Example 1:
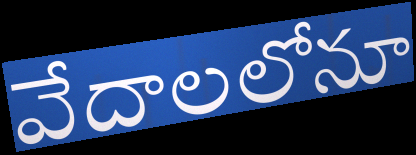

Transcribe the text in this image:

వేదాలలోనూ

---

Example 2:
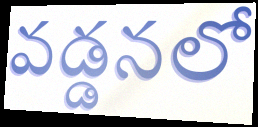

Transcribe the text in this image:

వడ్డనలో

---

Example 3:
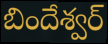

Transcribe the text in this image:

బిందేశ్వర్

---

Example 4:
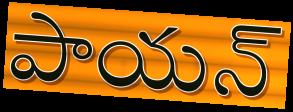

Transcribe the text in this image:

పాయన్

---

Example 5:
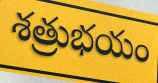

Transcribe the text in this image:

శత్రుభయం